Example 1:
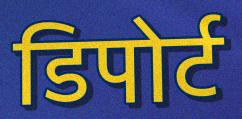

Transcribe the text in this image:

डिपोर्ट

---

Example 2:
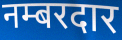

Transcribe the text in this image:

नम्बरदार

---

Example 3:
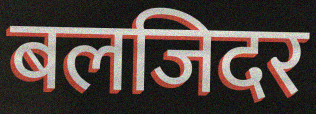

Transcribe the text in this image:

बलजिदर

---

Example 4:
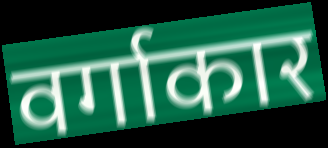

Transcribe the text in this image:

वर्गाकार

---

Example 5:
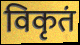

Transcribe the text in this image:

विकृतं